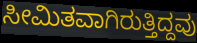
ಸೀಮಿತವಾಗಿರುತ್ತಿದ್ದವು